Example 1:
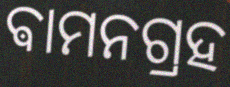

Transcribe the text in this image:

ଵାମନଗ୍ରହ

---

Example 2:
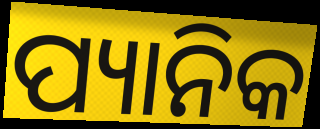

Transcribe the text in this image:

ପ୍ୟାନିକ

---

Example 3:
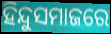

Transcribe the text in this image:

ହିନ୍ଦୁସମାଜରେ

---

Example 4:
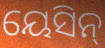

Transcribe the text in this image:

ୟେସିନ୍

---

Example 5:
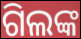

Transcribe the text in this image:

ଗିଲଙ୍କ